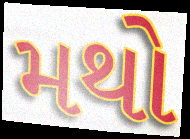
મથો